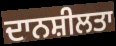
ਦਾਨਸ਼ੀਲਤਾ